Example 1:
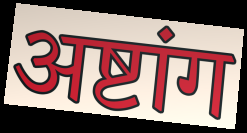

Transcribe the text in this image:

अष्टांग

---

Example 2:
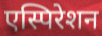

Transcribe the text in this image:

एस्पिरेशन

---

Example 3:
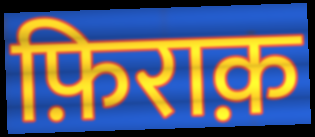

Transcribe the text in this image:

फ़िराक़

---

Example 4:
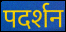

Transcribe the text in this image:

पदर्शन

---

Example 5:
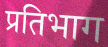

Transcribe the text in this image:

प्रतिभाग